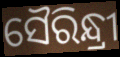
ସୈରିନ୍ଧ୍ରୀ